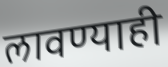
लावण्याही